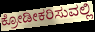
ಕ್ರೋಡೀಕರಿಸುವಲ್ಲಿ